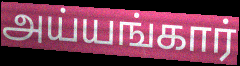
அய்யங்கார்